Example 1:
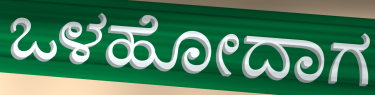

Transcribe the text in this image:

ಒಳಹೋದಾಗ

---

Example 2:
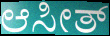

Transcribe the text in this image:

ಆಸೀತ್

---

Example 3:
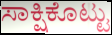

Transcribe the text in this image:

ಸಾಕ್ಷಿಕೊಟ್ಟು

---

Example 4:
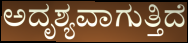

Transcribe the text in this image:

ಅದೃಶ್ಯವಾಗುತ್ತಿದೆ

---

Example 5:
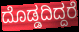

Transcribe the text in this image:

ದೊಡ್ಡದಿದ್ದರೆ